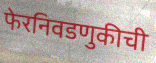
फेरनिवडणुकीची